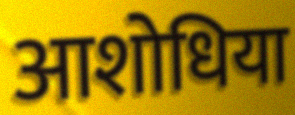
आशोधिया